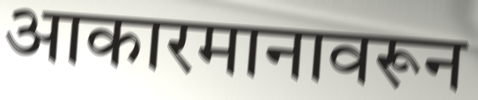
आकारमानावरून